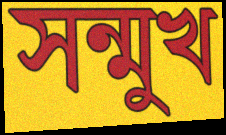
সন্মুখ